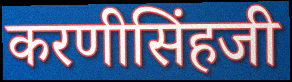
करणीसिंहजी